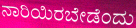
ನಾರಿಯಿರಬೇಡೆಂದು